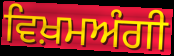
ਵਿਖ਼ਮਅੰਗੀ